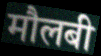
मौलबी